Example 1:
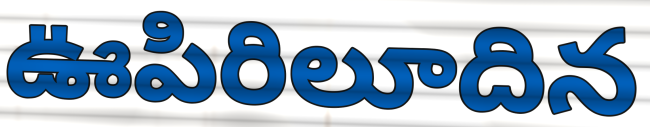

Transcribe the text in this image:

ఊపిరిలూదిన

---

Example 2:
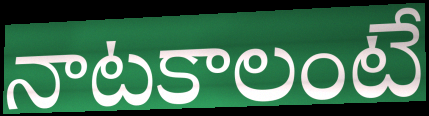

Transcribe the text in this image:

నాటకాలంటే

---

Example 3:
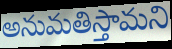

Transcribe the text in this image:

అనుమతిస్తామని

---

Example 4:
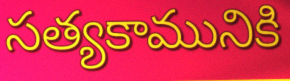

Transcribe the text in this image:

సత్యకామునికి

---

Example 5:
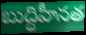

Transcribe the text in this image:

బుద్ధిహీనత